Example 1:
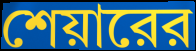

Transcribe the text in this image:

শেয়ারের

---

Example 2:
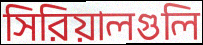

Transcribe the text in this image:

সিরিয়ালগুলি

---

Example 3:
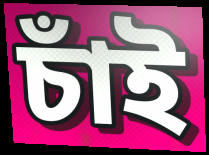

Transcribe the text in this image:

চাঁই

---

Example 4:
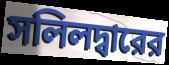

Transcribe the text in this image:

সলিলদ্বারের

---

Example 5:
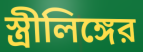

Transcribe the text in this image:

স্ত্রীলিঙ্গের